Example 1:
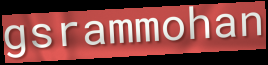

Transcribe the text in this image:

gsrammohan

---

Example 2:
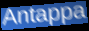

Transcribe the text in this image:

Antappa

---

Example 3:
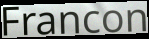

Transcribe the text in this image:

Francon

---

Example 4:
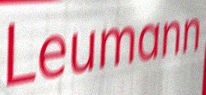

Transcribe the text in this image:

Leumann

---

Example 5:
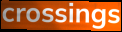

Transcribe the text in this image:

crossings